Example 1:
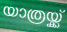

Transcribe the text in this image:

യാത്രയ്ക്ക്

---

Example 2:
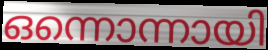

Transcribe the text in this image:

ഒന്നൊന്നായി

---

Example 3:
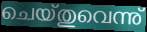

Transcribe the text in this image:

ചെയ്തുവെന്നു്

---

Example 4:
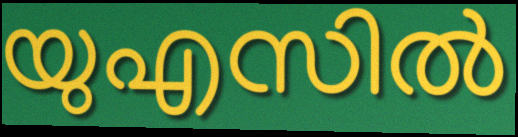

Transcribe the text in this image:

യുഎസിൽ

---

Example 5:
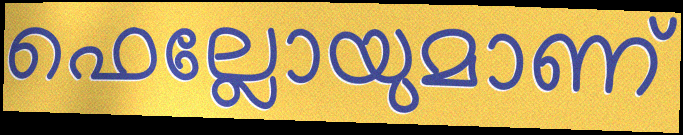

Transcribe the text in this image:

ഫെല്ലോയുമാണ്